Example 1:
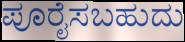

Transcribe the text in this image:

ಪೂರೈಸಬಹುದು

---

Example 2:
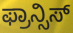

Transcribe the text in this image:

ಫ್ರಾನ್ಸಿಸ್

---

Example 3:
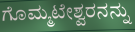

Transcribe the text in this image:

ಗೊಮ್ಮಟೇಶ್ವರನನ್ನು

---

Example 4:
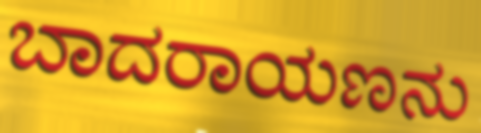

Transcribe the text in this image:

ಬಾದರಾಯಣನು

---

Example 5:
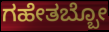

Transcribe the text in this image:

ಗಹೇತಬ್ಬೋ